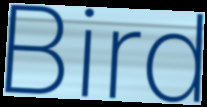
Bird